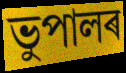
ভুপালৰ